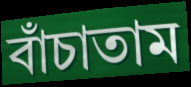
বাঁচাতাম